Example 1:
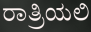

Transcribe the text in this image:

ರಾತ್ರಿಯಲಿ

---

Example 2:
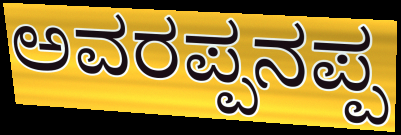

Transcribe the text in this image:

ಅವರಪ್ಪನಪ್ಪ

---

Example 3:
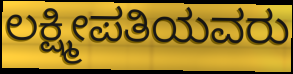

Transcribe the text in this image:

ಲಕ್ಷ್ಮೀಪತಿಯವರು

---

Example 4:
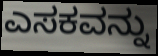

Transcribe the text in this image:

ಎಸಕವನ್ನು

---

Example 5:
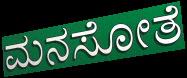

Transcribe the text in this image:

ಮನಸೋತೆ